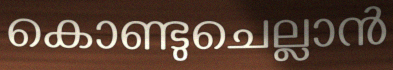
കൊണ്ടുചെല്ലാൻ